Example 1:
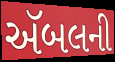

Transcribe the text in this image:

ઍબલની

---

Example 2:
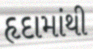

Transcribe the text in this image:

હૃદામાંથી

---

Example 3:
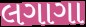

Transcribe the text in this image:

લગાગા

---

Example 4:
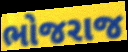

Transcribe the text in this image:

ભોજરાજ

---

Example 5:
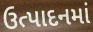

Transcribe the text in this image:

ઉત્પાદનમાં